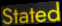
Stated